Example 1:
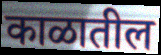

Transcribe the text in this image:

काळातील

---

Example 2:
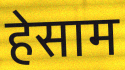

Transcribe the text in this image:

हेसाम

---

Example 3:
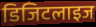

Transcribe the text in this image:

डिजिटलाइज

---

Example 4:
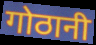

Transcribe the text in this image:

गोठानी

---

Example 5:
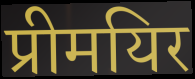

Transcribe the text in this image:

प्रीमयिर